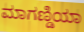
ಮಾಗಣ್ಡಿಯಾ